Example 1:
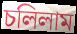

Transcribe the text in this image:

চলিলাম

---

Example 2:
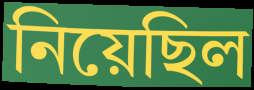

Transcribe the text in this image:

নিয়েছিল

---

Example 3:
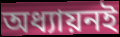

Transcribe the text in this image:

অধ্যায়নই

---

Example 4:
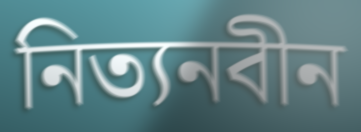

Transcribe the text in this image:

নিত্যনবীন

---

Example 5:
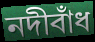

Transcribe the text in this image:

নদীবাঁধ